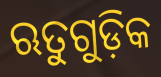
ଋତୁଗୁଡ଼ିକ